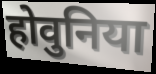
होवुनिया